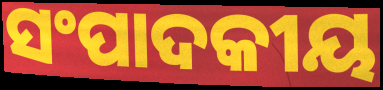
ସଂପାଦକୀୟ